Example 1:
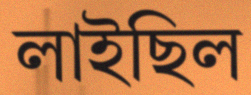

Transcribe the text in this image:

লাইছিল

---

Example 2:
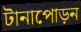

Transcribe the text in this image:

টানাপোড়ন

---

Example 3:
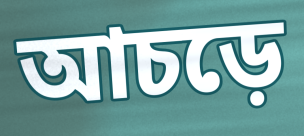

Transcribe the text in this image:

আচড়ে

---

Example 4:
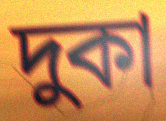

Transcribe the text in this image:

দুকা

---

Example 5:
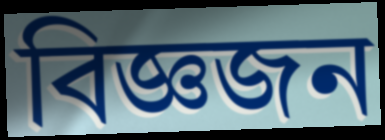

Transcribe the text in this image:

বিজ্ঞজন